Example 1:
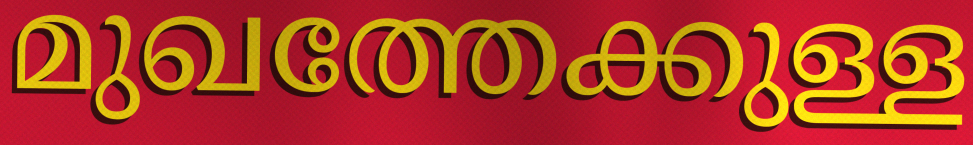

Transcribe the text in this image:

മുഖത്തേക്കുള്ള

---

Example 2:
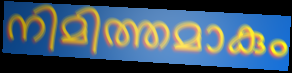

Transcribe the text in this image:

നിമിത്തമാകും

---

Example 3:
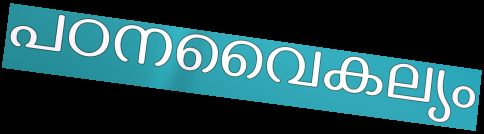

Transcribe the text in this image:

പഠനവൈകല്യം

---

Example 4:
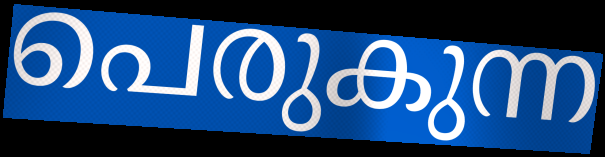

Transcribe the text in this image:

പെരുകുന്ന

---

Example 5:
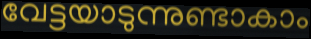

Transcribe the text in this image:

വേട്ടയാടുന്നുണ്ടാകാം